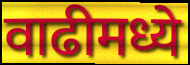
वाढीमध्ये